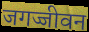
जगज्जीवन